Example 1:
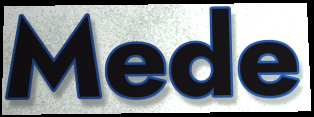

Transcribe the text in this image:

Mede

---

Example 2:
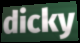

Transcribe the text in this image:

dicky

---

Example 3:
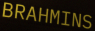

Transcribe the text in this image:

BRAHMINS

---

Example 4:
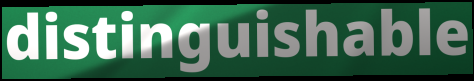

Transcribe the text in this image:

distinguishable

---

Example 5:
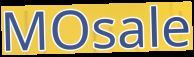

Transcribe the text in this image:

MOsale